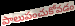
పాలుపంచుకోవడం